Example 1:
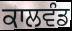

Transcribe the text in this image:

ਕਾਲਵੰਡ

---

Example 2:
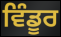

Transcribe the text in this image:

ਵਿੰਡੂਰ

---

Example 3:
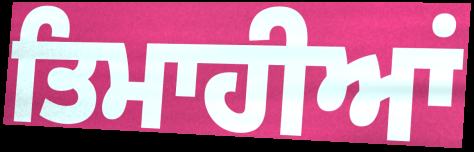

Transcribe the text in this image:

ਤਿਮਾਹੀਆਂ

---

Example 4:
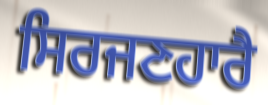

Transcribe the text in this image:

ਸਿਰਜਣਹਾਰੈ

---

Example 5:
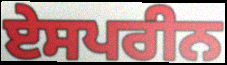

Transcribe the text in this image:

ਏਸਪਰੀਨ